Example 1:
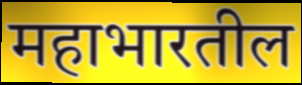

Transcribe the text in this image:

महाभारतील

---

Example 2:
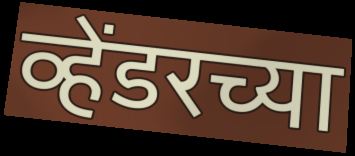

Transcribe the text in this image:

व्हेंडरच्या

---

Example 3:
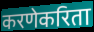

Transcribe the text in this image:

करणेकरिता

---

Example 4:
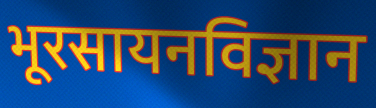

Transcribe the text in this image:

भूरसायनविज्ञान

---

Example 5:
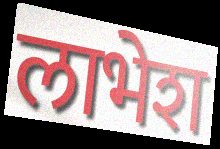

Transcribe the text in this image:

लाभेश